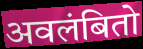
अवलंबितो